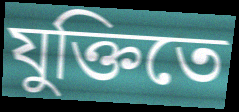
যুক্তিতে